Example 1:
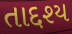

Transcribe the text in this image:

તાદ્દશ્ય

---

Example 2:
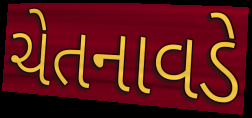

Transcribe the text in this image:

ચેતનાવડે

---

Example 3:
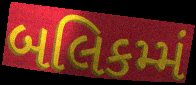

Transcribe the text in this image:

બલિકમ્મં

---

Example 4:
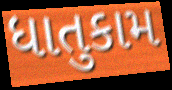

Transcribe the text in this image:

ધાતુકામ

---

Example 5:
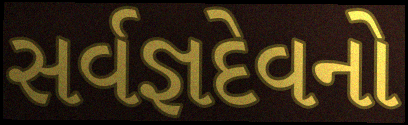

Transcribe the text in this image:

સર્વજ્ઞદેવનો